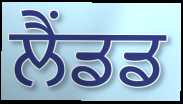
ਲੈਂਡਡ